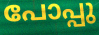
പോപ്പു